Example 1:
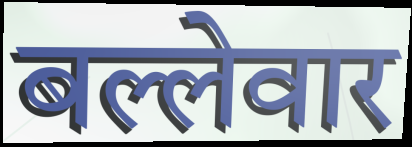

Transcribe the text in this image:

बल्लेवार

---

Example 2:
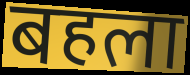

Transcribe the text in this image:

बहला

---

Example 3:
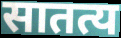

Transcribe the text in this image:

सातत्य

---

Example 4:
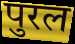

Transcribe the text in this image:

पुरल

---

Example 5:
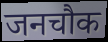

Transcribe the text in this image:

जनचौक